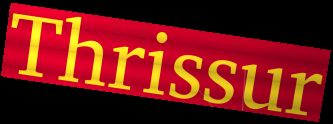
Thrissur